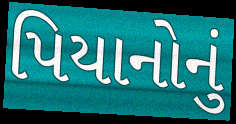
પિયાનોનું